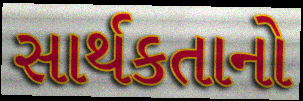
સાર્થકતાનો